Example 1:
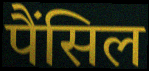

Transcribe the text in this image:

पैंसिल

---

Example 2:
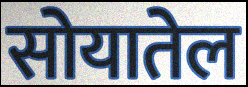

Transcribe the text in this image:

सोयातेल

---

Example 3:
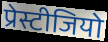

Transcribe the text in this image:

प्रेस्टीजियो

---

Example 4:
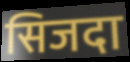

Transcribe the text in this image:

सिजदा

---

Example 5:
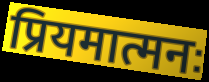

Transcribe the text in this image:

प्रियमात्मनः